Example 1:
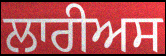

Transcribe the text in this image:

ਲਾਰੀਅਸ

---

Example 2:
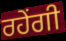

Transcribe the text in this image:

ਰਹੇਂਗੀ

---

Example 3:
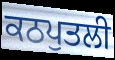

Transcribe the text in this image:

ਕਠਪੁਤਲੀ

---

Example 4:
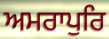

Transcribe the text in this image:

ਅਮਰਾਪੁਰਿ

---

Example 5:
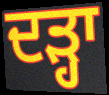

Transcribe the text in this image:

ਦੜ੍ਹਾ